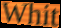
Whit